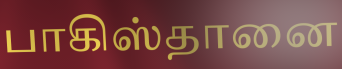
பாகிஸ்தானை